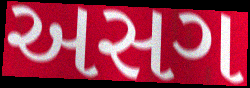
અસગ